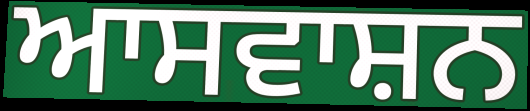
ਆਸਵਾਸ਼ਨ